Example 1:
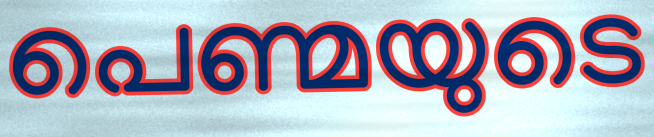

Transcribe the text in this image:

പെണ്മയുടെ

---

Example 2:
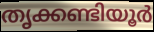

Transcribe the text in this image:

തൃക്കണ്ടിയൂർ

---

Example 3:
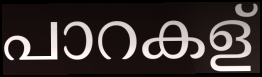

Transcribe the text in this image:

പാറകള്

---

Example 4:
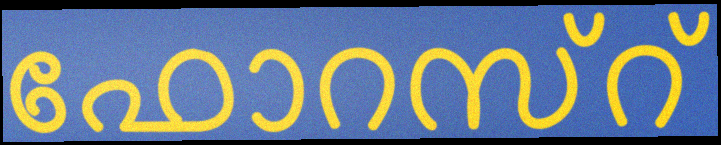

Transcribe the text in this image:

ഫോറസ്റ്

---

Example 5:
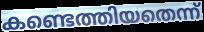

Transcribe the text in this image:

കണ്ടെത്തിയതെന്ന്